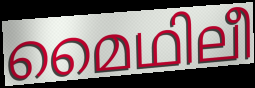
മൈഥിലീ